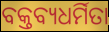
ବକ୍ତବ୍ୟଧର୍ମିତା